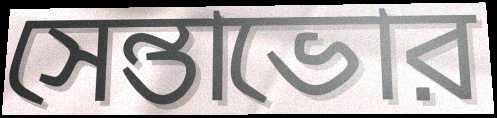
সেন্তাভোর